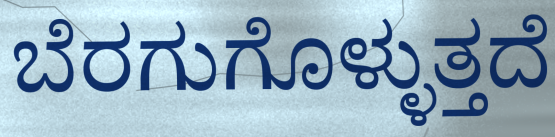
ಬೆರಗುಗೊಳ್ಳುತ್ತದೆ